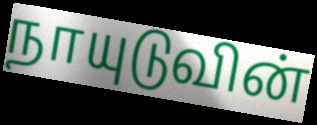
நாயுடுவின்